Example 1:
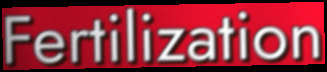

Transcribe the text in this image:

Fertilization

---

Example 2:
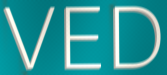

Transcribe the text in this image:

VED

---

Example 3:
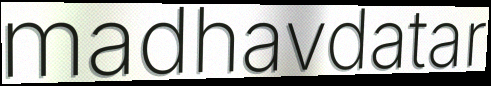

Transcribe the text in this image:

madhavdatar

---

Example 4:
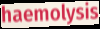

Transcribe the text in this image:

haemolysis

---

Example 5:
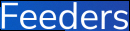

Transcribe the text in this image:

Feeders